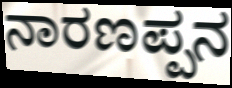
ನಾರಣಪ್ಪನ